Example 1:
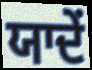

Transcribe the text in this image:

ਯਾਦੇਂ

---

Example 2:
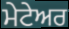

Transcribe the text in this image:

ਮੇਟੇਅਰ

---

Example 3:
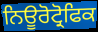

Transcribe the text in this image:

ਨਿਊਰੋਟ੍ਰੋਫਿਕ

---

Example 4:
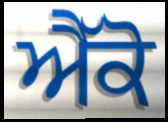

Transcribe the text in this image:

ਐੱਕੋ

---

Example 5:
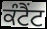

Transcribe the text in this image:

ਕੰਟੈਂਟ